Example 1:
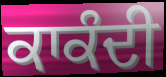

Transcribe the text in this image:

ਕਾਕੰਦੀ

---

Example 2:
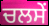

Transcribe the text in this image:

ਚਲਸੇਂ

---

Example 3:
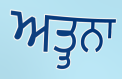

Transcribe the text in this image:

ਅਤ੍ਤਨਾ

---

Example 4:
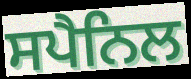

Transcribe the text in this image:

ਸਪੈਨਿਲ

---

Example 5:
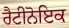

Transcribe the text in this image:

ਰੈਟੀਨੋਇਕ